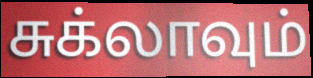
சுக்லாவும்